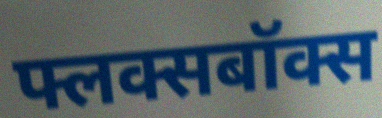
फ्लक्सबॉक्स